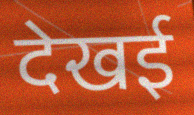
देखई